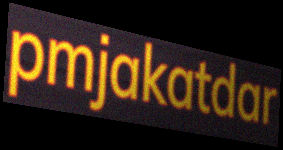
pmjakatdar